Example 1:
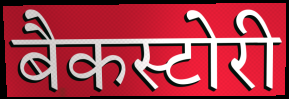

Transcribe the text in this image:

बैकस्टोरी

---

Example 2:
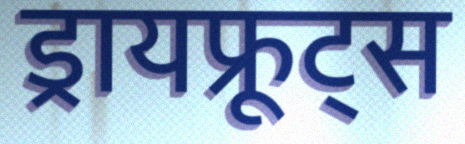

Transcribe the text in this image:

ड्रायफ्रूट्स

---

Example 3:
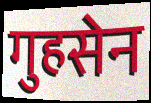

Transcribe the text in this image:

गुहसेन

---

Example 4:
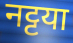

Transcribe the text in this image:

नट्टया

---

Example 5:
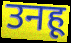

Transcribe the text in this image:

उनहू